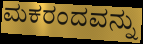
ಮಕರಂದವನ್ನು